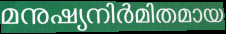
മനുഷ്യനിർമിതമായ